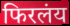
फिरलंय